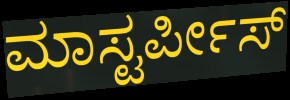
ಮಾಸ್ಟರ್ಪೀಸ್